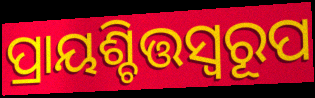
ପ୍ରାୟଶ୍ଚିତ୍ତସ୍ୱରୂପ